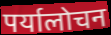
पर्यालोचन